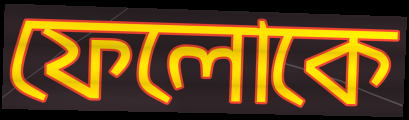
ফেলোকে